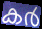
കർ